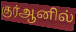
குர்ஆனில்